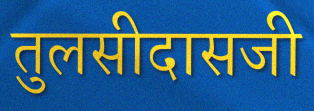
तुलसीदासजी